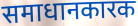
समाधानकारक